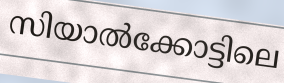
സിയാൽക്കോട്ടിലെ